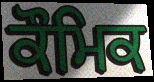
ਕੌਮਿਕ